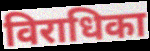
विराधिका